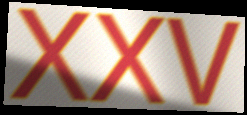
XXV